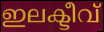
ഇലക്ടീവ്